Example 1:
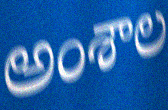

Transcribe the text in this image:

అంశాల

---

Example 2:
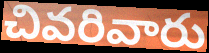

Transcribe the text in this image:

చివరివారు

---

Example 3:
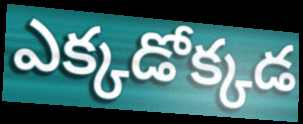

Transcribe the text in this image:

ఎక్కడోక్కడ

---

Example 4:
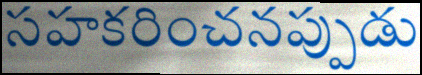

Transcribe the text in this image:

సహకరించనప్పుడు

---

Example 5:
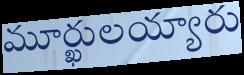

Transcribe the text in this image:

మూర్ఖులయ్యారు